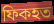
ফিকহত